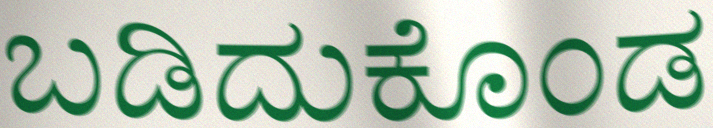
ಬಡಿದುಕೊಂಡ